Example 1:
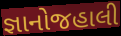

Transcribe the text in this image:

જ્ઞાનોજહાલી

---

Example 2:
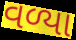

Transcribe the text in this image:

વળ્યા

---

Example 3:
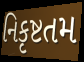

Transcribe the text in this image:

નિકૃષ્ટતમ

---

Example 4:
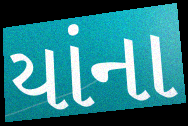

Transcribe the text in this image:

યાંના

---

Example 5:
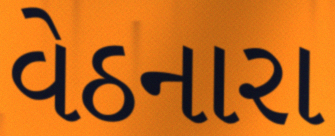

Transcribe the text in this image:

વેઠનારા